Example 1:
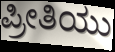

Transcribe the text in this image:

ಪ್ರೀತಿಯು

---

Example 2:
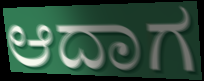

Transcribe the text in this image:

ಆದಾಗ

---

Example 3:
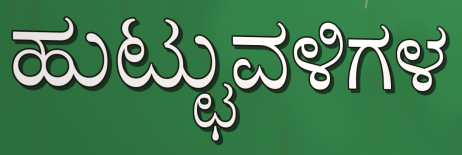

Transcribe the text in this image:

ಹುಟ್ಟುವಳಿಗಳ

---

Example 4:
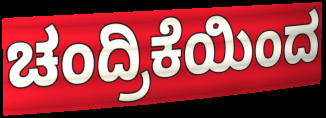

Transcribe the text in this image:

ಚಂದ್ರಿಕೆಯಿಂದ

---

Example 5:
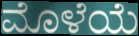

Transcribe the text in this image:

ಮೊಳೆಯೆ